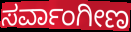
ಸರ್ವಾಂಗೀಣ